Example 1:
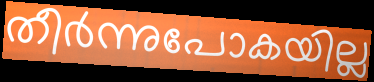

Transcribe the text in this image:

തീർന്നുപോകയില്ല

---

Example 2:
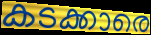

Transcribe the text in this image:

കടക്കാരെ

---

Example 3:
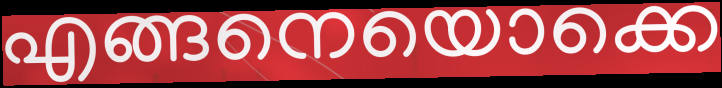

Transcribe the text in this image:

എങ്ങനെയൊക്കെ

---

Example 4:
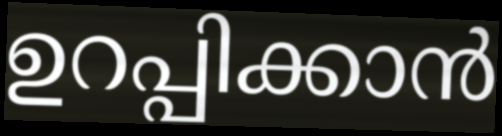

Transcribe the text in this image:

ഉറപ്പിക്കാൻ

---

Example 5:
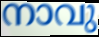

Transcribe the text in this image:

നാവു